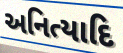
અનિત્યાદિ